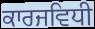
ਕਾਰਜਵਿਧੀ